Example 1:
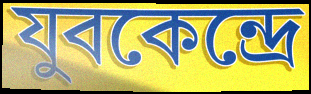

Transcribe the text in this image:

যুবকেন্দ্রে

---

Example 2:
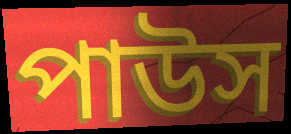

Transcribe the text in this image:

পাউস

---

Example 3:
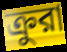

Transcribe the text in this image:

ক্রুরা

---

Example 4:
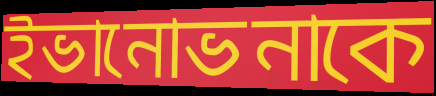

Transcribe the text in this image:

ইভানোভনাকে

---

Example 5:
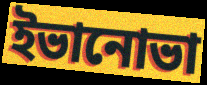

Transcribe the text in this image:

ইভানোভা